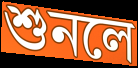
শুনলে